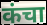
कंचा